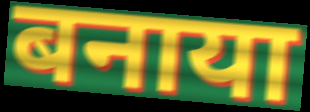
बनाया